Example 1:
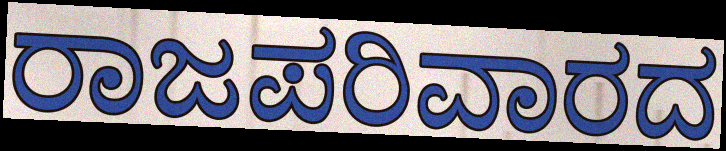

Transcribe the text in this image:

ರಾಜಪರಿವಾರದ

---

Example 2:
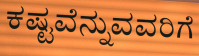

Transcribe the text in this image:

ಕಷ್ಟವೆನ್ನುವವರಿಗೆ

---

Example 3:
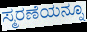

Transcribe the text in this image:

ಸ್ಮರಣೆಯನ್ನೂ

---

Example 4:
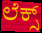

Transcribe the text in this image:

ಲೆಕ್ಸ್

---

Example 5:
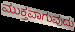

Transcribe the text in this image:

ಮುಕ್ತವಾಗುವುದು